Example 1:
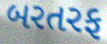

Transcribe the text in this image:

બરતરફ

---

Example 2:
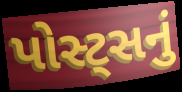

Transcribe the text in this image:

પોસ્ટ્સનું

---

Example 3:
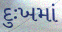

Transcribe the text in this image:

દુઃખમાં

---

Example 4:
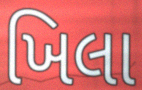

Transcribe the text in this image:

ખિલા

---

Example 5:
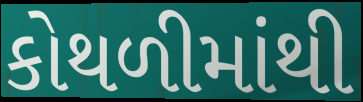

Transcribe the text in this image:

કોથળીમાંથી